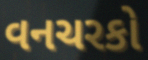
વનચરકો